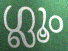
ഗ്ലൂം